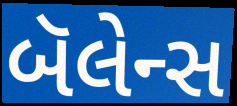
બૅલેન્સ